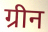
ग्रीन